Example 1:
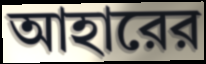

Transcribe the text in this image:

আহারের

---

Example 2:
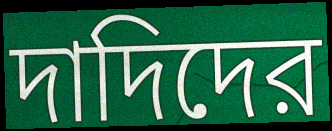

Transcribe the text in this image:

দাদিদের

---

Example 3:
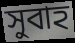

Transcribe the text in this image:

সুবাহ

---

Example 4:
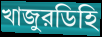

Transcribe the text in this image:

খাজুরডিহি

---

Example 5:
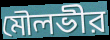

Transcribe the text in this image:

মৌলভীর